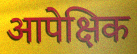
आपेक्षिक